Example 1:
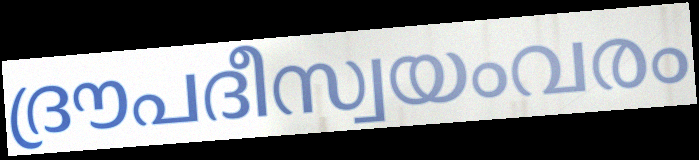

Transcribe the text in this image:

ദ്രൗപദീസ്വയംവരം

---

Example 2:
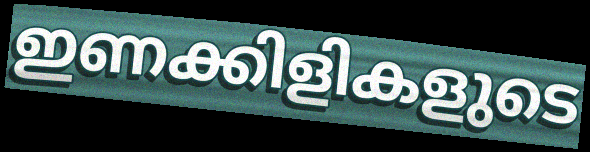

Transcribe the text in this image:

ഇണക്കിളികളുടെ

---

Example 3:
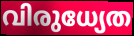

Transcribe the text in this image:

വിരുധ്യേത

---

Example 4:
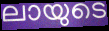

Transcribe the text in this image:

ലായുടെ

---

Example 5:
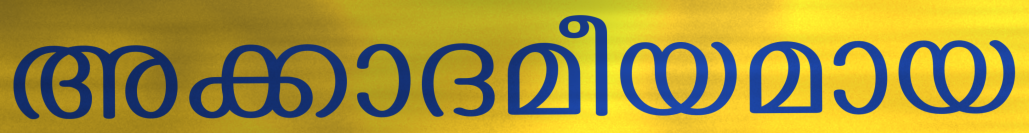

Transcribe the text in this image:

അക്കാദമീയമായ